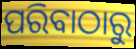
ପରିବାଠାରୁ